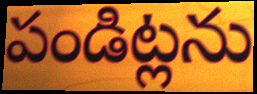
పండిట్లను